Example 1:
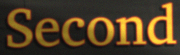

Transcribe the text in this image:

Second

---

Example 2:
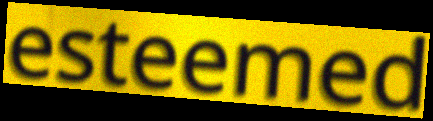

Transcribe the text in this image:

esteemed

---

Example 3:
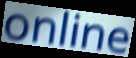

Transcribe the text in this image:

online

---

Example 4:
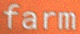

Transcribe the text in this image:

farm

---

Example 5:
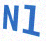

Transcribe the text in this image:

Nl